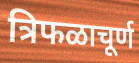
त्रिफळाचूर्ण